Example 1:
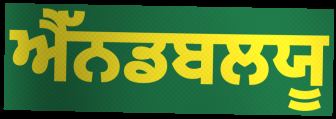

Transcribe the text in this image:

ਐੱਨਡਬਲਯੂ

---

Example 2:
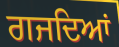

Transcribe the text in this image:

ਗਜਦਿਆਂ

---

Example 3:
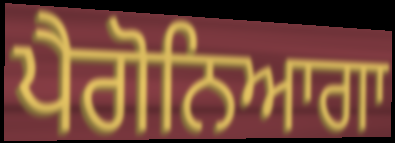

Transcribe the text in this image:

ਪੈਗੋਨਿਆਗਾ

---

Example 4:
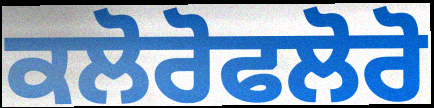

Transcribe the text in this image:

ਕਲੋਰੋਫਲੋਰੋ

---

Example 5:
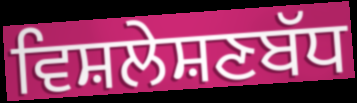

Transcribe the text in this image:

ਵਿਸ਼ਲੇਸ਼ਣਬੱਧ